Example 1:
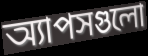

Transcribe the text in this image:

অ্যাপসগুলো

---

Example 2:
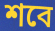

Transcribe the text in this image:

শবে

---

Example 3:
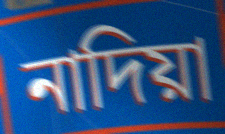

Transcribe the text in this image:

নাদিয়া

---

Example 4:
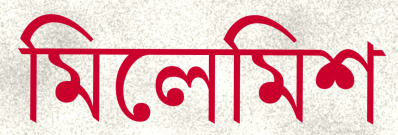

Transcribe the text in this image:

মিলেমিশ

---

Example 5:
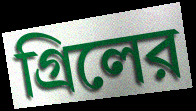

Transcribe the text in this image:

গ্রিলের